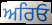
ਅਰਿਓ